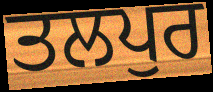
ਤਲਪੁਰ